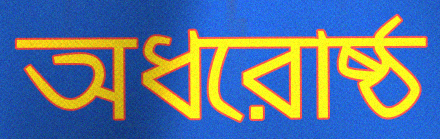
অধরোষ্ঠ